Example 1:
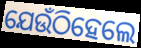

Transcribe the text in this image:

ଯେଉଁଠିହେଲେ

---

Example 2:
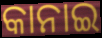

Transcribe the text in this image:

କାନାଇ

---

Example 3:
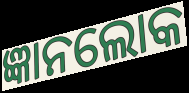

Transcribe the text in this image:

ଜ୍ଞାନଲୋକ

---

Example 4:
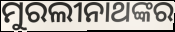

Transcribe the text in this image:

ମୁରଲୀନାଥଙ୍କର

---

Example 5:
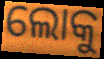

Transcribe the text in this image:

ଲୋକୁ